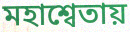
মহাশ্বেতায়